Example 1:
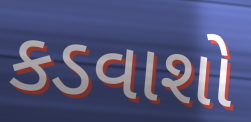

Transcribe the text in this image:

કડવાશો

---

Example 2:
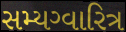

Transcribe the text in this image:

સમ્યગ્વારિત્ર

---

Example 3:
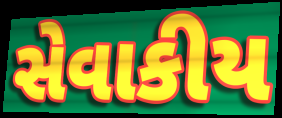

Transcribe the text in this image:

સેવાકીય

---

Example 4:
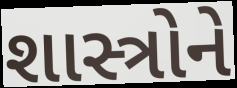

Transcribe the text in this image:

શાસ્ત્રોને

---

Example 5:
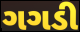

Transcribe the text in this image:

ગગડી